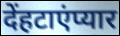
देंहटाएंप्यार